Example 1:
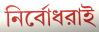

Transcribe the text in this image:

নির্বোধরাই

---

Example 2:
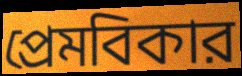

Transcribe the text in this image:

প্রেমবিকার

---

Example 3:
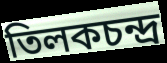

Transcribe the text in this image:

তিলকচন্দ্র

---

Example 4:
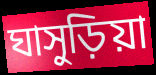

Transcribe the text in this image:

ঘাসুড়িয়া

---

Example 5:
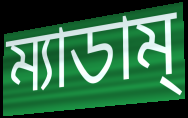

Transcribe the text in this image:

ম্যাডাম্